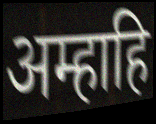
अम्हाहि